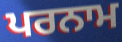
ਪਰਨਾਮ